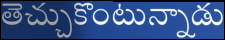
తెచ్చుకొంటున్నాడు